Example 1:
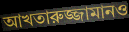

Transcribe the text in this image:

আখতারুজ্জামানও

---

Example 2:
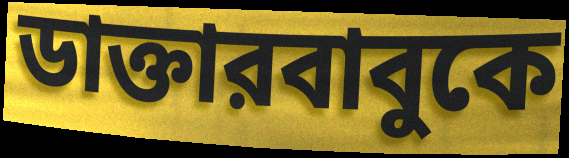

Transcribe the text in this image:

ডাক্তারবাবুকে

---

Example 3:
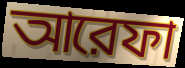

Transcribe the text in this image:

আরেফা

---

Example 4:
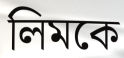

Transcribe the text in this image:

লিমকে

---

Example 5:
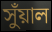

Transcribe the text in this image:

সুঁয়াল